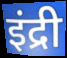
इंद्री